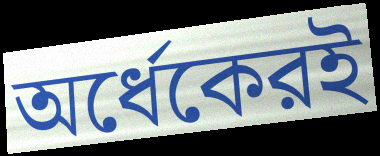
অর্ধেকেরই